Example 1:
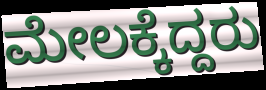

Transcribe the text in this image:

ಮೇಲಕ್ಕೆದ್ದರು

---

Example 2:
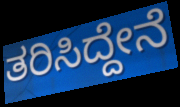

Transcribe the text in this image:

ತರಿಸಿದ್ದೇನೆ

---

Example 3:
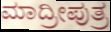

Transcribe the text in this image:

ಮಾದ್ರೀಪುತ್ರ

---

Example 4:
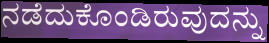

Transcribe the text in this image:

ನಡೆದುಕೊಂಡಿರುವುದನ್ನು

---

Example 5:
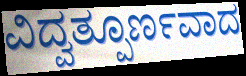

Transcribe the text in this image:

ವಿದ್ವತ್ಪೂರ್ಣವಾದ